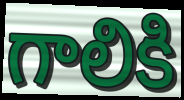
గాలికి